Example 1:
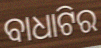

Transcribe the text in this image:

ବାଧାଟିର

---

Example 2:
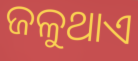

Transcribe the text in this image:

ଜଳୁଥାଏ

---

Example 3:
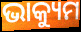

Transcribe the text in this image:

ଭାକ୍ୟୁମ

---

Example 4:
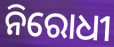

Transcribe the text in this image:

ନିରୋଧୀ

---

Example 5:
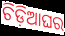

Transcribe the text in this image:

ଚିଡ଼ିଆଘର